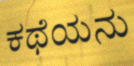
ಕಥೆಯನು